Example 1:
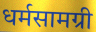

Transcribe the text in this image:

धर्मसामग्री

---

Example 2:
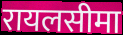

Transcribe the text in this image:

रायलसीमा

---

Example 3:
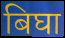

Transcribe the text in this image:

बिघा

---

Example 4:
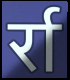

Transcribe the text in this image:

र्रा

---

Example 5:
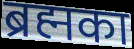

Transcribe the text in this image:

ब्रह्मका